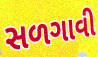
સળગાવી